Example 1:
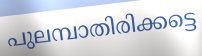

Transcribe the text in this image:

പുലമ്പാതിരിക്കട്ടെ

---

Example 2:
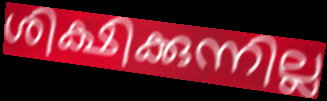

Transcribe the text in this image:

ശിക്ഷിക്കുന്നില്ല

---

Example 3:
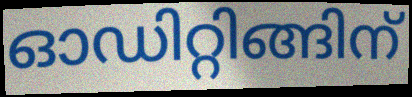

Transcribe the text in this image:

ഓഡിറ്റിങ്ങിന്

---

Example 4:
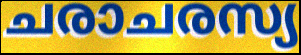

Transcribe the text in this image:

ചരാചരസ്യ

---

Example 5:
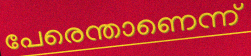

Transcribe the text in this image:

പേരെന്താണെന്ന്